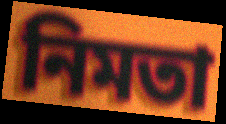
নিমতা